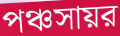
পঞ্চসায়র